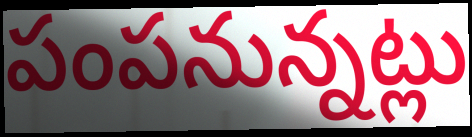
పంపనున్నట్లు